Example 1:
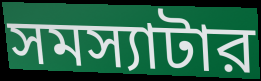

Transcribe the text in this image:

সমস্যাটার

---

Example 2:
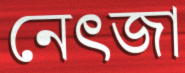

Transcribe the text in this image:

নেৎজা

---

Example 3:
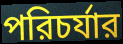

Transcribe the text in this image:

পরিচর্যার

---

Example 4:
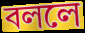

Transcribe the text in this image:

বললে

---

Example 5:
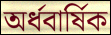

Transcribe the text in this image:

অর্ধবার্ষিক